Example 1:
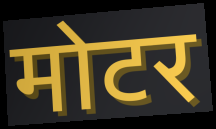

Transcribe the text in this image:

मोटर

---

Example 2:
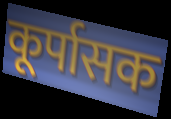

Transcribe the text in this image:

कूर्पासक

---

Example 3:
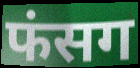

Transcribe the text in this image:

फंसग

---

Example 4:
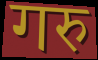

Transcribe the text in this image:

गरु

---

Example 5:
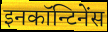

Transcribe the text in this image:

इनकॉन्टिनेंस